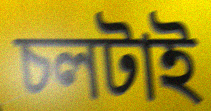
চলটাই